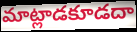
మాట్లాడకూడదా